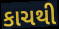
કાચથી